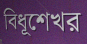
বিধূশেখর